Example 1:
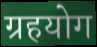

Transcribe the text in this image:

ग्रहयोग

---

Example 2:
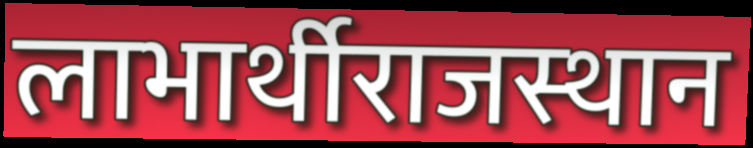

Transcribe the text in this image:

लाभार्थीराजस्थान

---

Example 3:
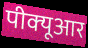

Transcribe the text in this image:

पीक्यूआर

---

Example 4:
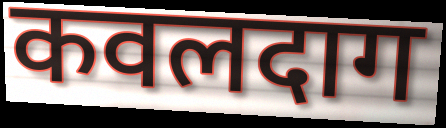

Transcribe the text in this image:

कवलदाग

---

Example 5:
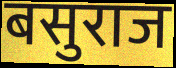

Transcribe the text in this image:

बसुराज